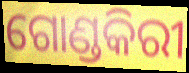
ଗୋଣ୍ଡକିରୀ